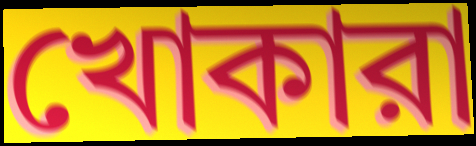
খোকারা